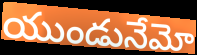
యుండునేమో